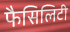
फैसिलिटी